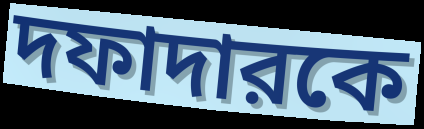
দফাদারকে